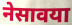
नेसावया